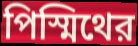
পিস্মিথের